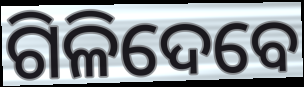
ଗିଳିଦେବେ